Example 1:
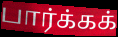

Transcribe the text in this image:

பார்க்கக்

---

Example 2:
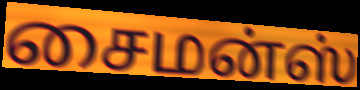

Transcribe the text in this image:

சைமன்ஸ்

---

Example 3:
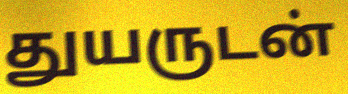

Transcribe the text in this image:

துயருடன்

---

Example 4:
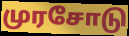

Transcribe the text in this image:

முரசோடு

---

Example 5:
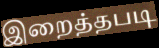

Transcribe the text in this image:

இறைத்தபடி